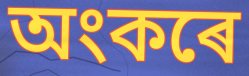
অংকৰে